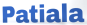
Patiala